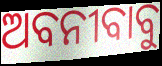
ଅବନୀବାବୁ